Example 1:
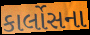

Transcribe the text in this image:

કાર્લોસના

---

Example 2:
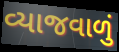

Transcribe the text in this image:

વ્યાજવાળું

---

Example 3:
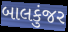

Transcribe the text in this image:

બાલકુંજર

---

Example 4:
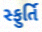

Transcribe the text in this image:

સ્ફુર્તિ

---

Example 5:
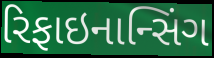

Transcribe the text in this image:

રિફાઇનાન્સિંગ